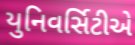
યુનિવર્સિટીએ